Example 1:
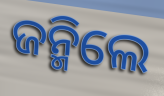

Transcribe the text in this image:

ଜନ୍ମିଲେ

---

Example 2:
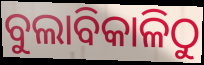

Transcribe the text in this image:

ବୁଲାବିକାଳିଠୁ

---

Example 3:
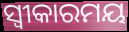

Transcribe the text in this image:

ସ୍ଵୀକାରମୟ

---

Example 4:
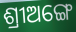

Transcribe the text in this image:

ଶ୍ରୀଅଙ୍ଗେ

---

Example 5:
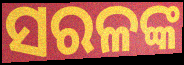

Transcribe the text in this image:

ସରଳଙ୍କ